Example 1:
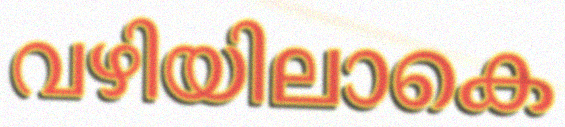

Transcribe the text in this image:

വഴിയിലാകെ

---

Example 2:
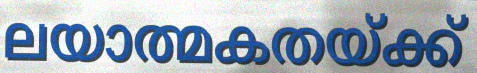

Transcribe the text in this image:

ലയാത്മകതയ്ക്ക്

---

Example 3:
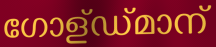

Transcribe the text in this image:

ഗോള്ഡ്മാന്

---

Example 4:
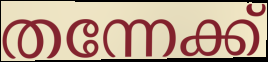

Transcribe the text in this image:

തന്നേക്ക്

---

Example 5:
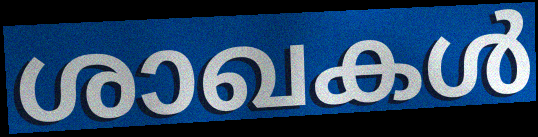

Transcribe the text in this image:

ശാഖകൾ